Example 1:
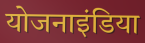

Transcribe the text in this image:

योजनाइंडिया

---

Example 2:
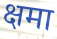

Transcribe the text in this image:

क्षमा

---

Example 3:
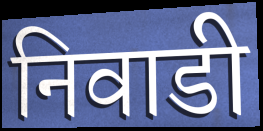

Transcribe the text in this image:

निवाडी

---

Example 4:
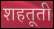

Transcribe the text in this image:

शहतूती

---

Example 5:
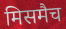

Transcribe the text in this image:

मिसमैच